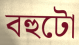
বহুটো